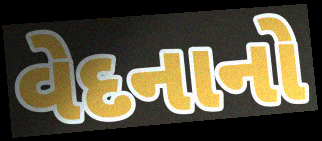
વેદનાનો